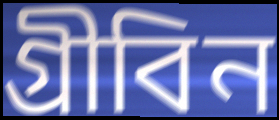
গ্রীবিন